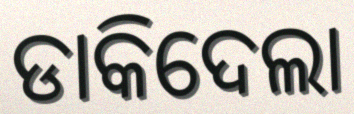
ଡାକିଦେଲା